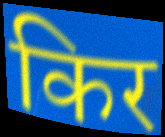
किर